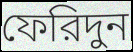
ফেরিদুন